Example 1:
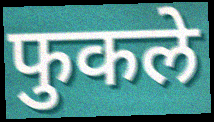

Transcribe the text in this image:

फुकले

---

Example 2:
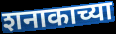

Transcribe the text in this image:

शनाकाच्या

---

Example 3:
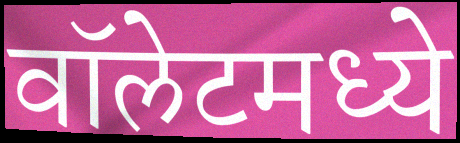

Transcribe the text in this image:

वॉलेटमध्ये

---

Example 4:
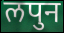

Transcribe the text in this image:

लपुन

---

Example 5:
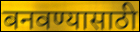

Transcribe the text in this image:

बनवण्यासाठी